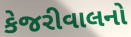
કેજરીવાલનો